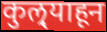
कुल्र्याहून